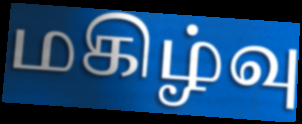
மகிழ்வு